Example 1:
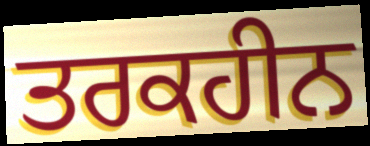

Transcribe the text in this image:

ਤਰਕਹੀਨ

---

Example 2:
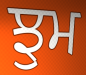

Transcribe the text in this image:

ਝੁਮ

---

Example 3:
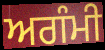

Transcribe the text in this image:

ਅਗੰਮੀ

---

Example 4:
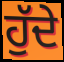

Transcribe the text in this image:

ਹੁੱਦੇ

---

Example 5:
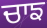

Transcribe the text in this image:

ਚਾਙ